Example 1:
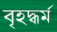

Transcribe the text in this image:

বৃহদ্ধৰ্ম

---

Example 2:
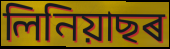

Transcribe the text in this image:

লিনিয়াছৰ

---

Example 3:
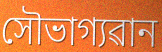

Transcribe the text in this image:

সৌভাগ্যৱান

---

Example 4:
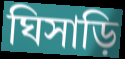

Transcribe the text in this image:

ঘিসাড়ি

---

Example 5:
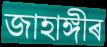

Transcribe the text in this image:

জাহাঙ্গীৰ